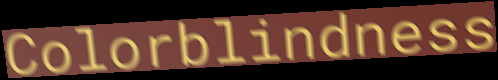
Colorblindness